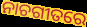
ନାଚଗୀତରେ